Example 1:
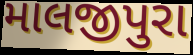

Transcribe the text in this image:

માલજીપુરા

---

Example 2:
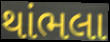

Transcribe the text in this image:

થાંભલા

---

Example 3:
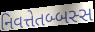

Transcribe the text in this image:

નિવત્તેતબ્બસ્સ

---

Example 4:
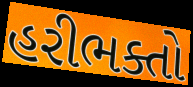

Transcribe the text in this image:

હરીભક્તો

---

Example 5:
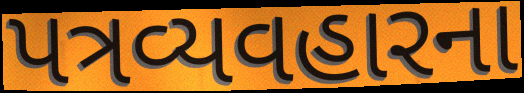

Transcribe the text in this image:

પત્રવ્યવહારના